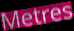
Metres